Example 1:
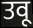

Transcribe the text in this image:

उवू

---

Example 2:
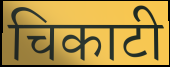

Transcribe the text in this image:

चिकाटी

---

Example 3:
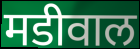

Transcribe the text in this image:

मडीवाल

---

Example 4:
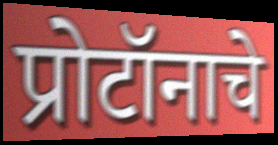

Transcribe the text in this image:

प्रोटॉनाचे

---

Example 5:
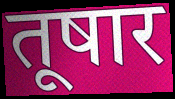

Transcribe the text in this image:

तूषार